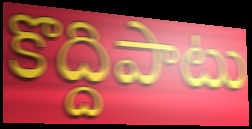
కొద్దిపాటు